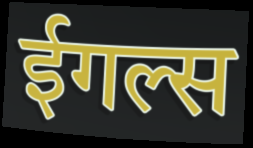
ईगल्स